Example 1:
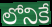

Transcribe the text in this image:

లోనికే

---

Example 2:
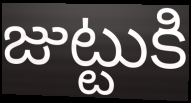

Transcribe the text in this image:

జుట్టుకి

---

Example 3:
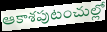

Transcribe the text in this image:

ఆకాశపుటంచుల్లో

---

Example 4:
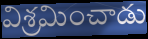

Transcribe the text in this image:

విశ్రమించాడు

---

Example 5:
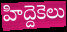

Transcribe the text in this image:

హిద్దెకెలు